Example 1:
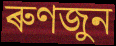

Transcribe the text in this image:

ৰুণজুন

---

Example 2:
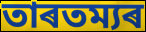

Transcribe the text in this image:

তাৰতম্যৰ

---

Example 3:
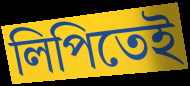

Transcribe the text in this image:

লিপিতেই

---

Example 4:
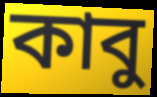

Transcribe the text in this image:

কাবু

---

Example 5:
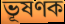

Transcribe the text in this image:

ভূষণক